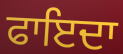
ਫਾਇਦਾ